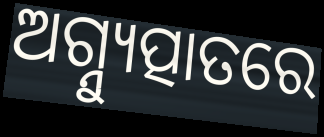
ଅଗ୍ନ୍ୟୁତ୍ପାତରେ